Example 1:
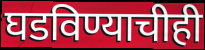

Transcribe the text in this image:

घडविण्याचीही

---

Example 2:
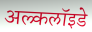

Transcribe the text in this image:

अल्कलॉइडे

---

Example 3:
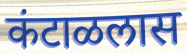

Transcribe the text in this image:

कंटाळलास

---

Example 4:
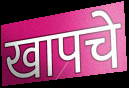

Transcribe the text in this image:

खापचे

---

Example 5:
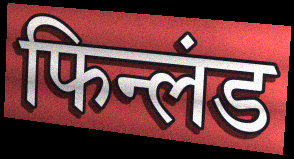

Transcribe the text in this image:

फिन्लंड